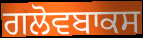
ਗਲੋਵਬਾਕਸ